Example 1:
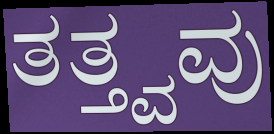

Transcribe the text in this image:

ತತ್ತ್ವವು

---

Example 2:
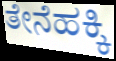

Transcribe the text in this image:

ತೇನೆಹಕ್ಕಿ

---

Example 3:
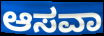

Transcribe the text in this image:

ಆಸವಾ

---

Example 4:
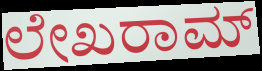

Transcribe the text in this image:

ಲೇಖರಾಮ್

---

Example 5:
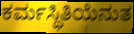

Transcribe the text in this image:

ಕರ್ಮಸ್ಥಿತಿಯೆನುತ